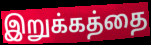
இறுக்கத்தை